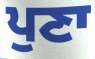
ਪੁਣਾ